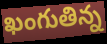
ఖంగుతిన్న